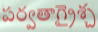
పర్వతాగ్రైశ్చ